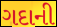
ગદાની